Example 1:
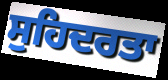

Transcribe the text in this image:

ਸੁਹਿਦਰਤਾ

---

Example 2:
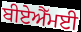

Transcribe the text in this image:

ਬੀਏਐੱਮਈ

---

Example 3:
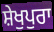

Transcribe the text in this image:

ਸ਼ੇਖੁਪੁਰਾ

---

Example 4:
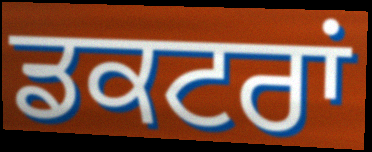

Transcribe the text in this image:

ਡਕਟਰਾਂ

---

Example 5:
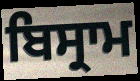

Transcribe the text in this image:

ਬਿਸ੍ਰਾਮ